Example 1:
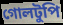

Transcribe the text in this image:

গোলটুপি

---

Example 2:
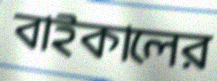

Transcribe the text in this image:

বাইকালের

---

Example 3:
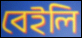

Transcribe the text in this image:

বেইলি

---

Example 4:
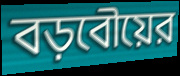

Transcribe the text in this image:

বড়বৌয়ের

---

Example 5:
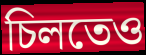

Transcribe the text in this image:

চিলতেও